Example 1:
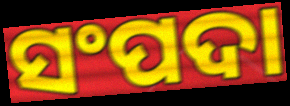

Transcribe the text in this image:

ସଂପଦା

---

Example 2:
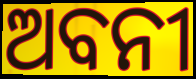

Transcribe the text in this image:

ଅବନୀ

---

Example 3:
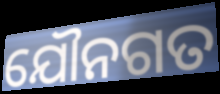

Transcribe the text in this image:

ଯୌନଗତ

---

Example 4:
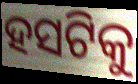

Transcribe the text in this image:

ହସଟିକୁ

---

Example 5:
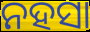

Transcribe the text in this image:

ନହସା